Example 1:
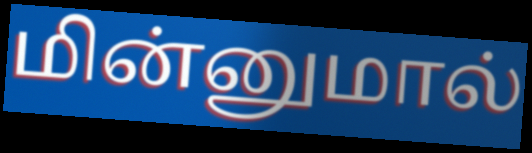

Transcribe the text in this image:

மின்னுமால்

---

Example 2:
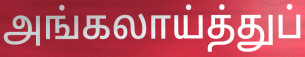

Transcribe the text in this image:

அங்கலாய்த்துப்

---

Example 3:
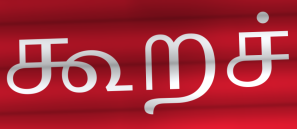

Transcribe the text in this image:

கூறச்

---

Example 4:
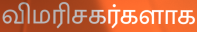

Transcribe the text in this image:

விமரிசகர்களாக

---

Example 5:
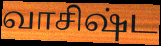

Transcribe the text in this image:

வாசிஷ்ட